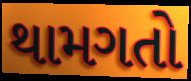
થામગતો